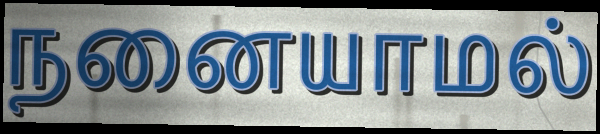
நனையாமல்